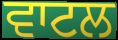
ਵਾਟਲ